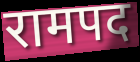
रामपद